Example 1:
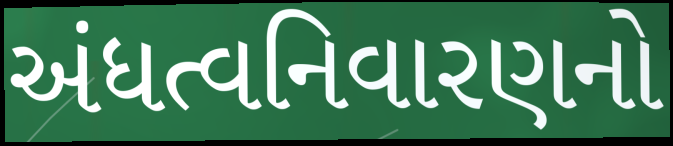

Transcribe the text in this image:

અંધત્વનિવારણનો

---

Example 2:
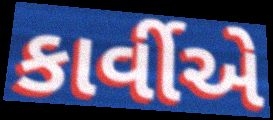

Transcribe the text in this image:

કાર્વીએ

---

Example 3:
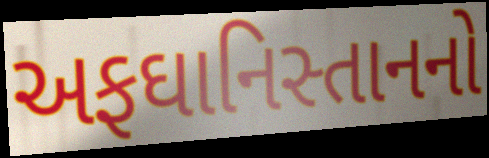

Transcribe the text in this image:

અફઘાનિસ્તાનનો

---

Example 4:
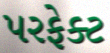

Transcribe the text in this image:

પરફેક્ટ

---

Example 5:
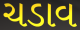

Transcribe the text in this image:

ચડાવ